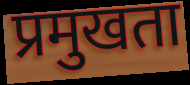
प्रमुखता